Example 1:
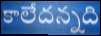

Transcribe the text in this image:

కాలేదన్నది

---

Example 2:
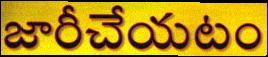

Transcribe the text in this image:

జారీచేయటం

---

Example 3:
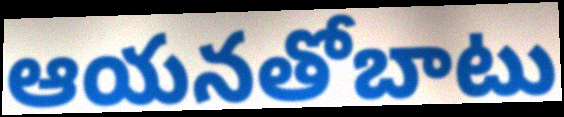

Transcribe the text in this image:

ఆయనతోబాటు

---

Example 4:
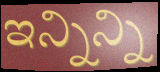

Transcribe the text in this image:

ఇన్నిన్ని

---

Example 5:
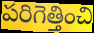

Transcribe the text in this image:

పరిగెత్తించి